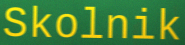
Skolnik